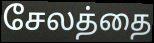
சேலத்தை